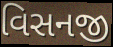
વિસનજી